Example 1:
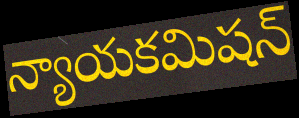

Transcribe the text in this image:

న్యాయకమిషన్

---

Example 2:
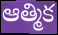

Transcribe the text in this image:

ఆత్మిక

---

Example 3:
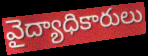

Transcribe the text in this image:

వైద్యాధికారులు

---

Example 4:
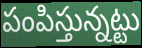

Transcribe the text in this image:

పంపిస్తున్నట్టు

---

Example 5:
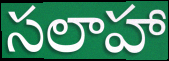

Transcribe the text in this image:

సలాహా